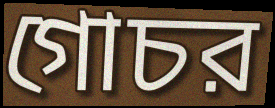
গোচর